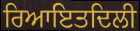
ਰਿਆਇਤਦਿਲੀ